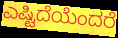
ಎಷ್ಟಿದೆಯೆಂದರೆ